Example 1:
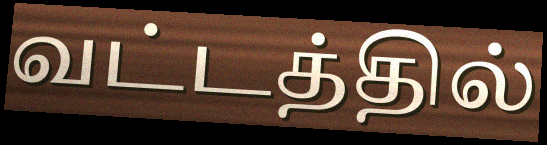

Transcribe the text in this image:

வட்டத்தில்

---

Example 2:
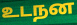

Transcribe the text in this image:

உடநன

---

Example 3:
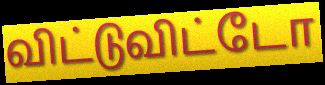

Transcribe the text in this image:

விட்டுவிட்டோ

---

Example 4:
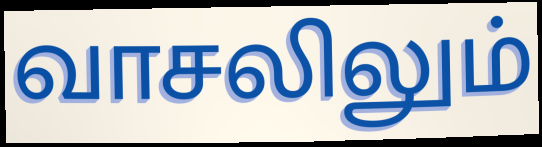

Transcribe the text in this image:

வாசலிலும்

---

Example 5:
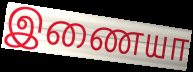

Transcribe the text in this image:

இணையா